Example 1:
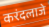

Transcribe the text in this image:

करंदलाजे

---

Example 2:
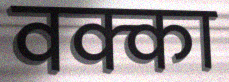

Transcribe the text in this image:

वक्का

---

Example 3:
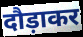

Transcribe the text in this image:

दौड़ाकर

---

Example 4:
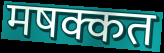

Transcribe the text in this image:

मषक्कत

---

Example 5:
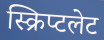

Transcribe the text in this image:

स्क्रिप्टलेट